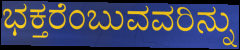
ಭಕ್ತರೆಂಬುವವರಿನ್ನು